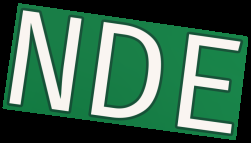
NDE